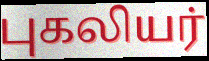
புகலியர்